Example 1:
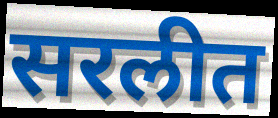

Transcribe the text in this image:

सरलीत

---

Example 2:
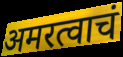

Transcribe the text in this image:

अमरत्वाचं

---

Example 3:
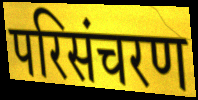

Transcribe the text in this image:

परिसंचरण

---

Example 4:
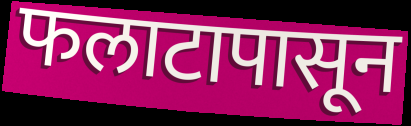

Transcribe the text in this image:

फलाटापासून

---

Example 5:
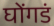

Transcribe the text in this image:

घोंगडं